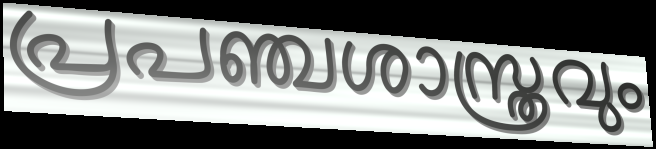
പ്രപഞ്ചശാസ്ത്രവും